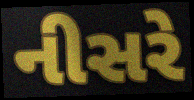
નીસરે